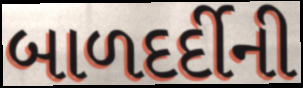
બાળદર્દીની